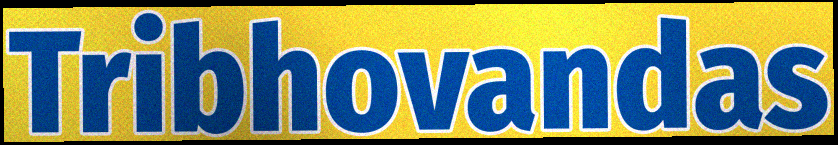
Tribhovandas